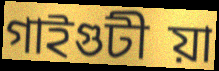
গাইগুটীয়া